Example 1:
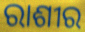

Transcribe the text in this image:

ରାଶୀର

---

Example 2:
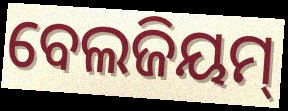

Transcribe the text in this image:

ବେଲଜିୟମ୍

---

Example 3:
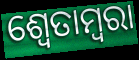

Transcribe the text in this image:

ଶ୍ୱେତାମ୍ବରା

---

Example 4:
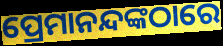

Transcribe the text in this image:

ପ୍ରେମାନନ୍ଦଙ୍କଠାରେ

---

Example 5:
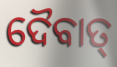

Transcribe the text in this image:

ଦୈବାତ୍